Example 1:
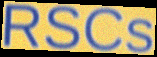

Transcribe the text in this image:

RSCs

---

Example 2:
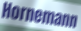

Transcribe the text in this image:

Hornemann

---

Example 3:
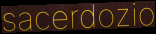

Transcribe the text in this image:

sacerdozio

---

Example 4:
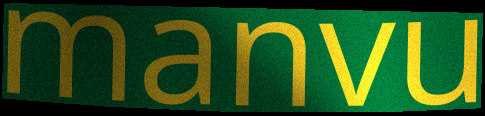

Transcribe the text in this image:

manvu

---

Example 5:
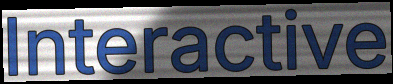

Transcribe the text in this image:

Interactive